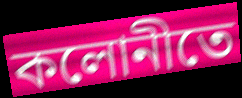
কলোনীতে